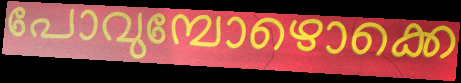
പോവുമ്പോഴൊക്കെ